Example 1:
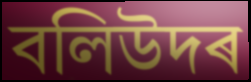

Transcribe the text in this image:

বলিউদৰ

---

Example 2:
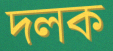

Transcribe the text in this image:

দলক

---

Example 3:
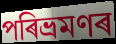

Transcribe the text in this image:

পৰিভ্ৰমণৰ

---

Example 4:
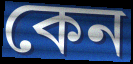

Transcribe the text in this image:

কেন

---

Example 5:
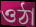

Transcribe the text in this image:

ওঠা